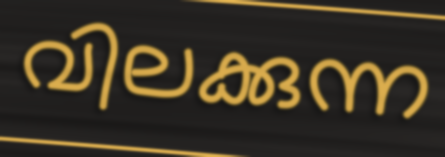
വിലക്കുന്ന